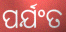
ପର୍ଯଂତ